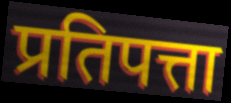
प्रतिपत्ता